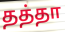
தத்தா